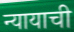
न्यायाची